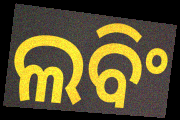
ଲବିଂ